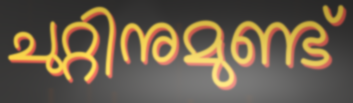
ചുറ്റിനുമുണ്ട്